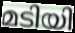
മടിയി